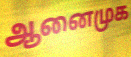
ஆனைமுக